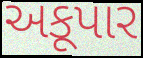
અકૂપાર